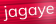
jagaye